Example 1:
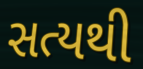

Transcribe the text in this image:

સત્યથી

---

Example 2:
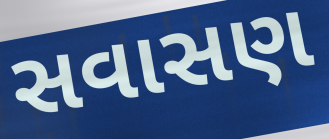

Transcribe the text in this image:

સવાસણ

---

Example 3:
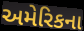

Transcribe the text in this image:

અમેરિકના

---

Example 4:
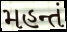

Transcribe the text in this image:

મહન્તં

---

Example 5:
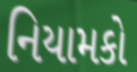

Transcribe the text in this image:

નિયામકો